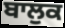
ਬਾਲੁਕ